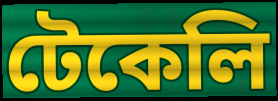
টেকেলি